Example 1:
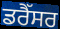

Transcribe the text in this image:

ਡਰੈੱਸਰ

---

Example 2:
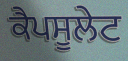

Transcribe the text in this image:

ਕੈਪਸੂਲੇਟ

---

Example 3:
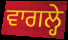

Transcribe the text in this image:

ਵਾਗਲ੍ਹੇ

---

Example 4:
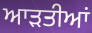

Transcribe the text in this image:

ਆਡ਼ਤੀਆਂ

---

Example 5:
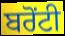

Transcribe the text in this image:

ਬਰੋਂਟੀ